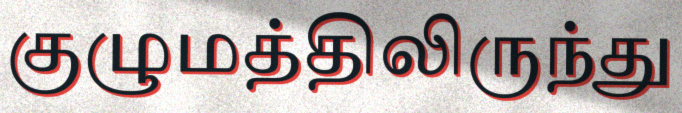
குழுமத்திலிருந்து